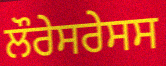
ਲੌਰੇਸਰੇਸਸ